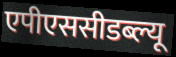
एपीएससीडब्ल्यू